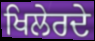
ਖਿਲੇਰਦੇ